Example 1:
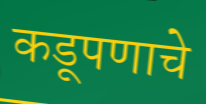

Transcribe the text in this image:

कडूपणाचे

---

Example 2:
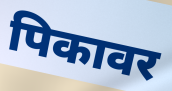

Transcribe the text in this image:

पिकावर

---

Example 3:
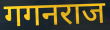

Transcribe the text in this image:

गगनराज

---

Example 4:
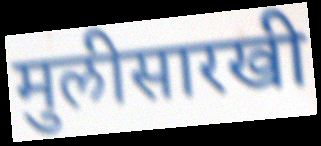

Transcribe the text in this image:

मुलीसारखी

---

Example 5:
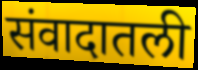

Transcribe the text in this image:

संवादातली